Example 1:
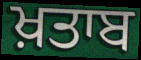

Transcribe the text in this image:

ਖ਼ਤਾਬ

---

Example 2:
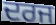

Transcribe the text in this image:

ਦਰਜ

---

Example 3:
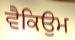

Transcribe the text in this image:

ਵੈਕਿਉਮ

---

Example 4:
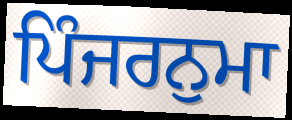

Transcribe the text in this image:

ਪਿੰਜਰਨੁਮਾ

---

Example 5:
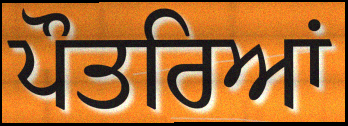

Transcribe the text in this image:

ਪੌਤਰਿਆਂ